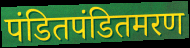
पंडितपंडितमरण